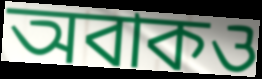
অবাকও